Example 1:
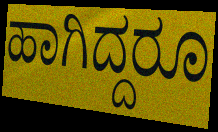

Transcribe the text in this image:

ಹಾಗಿದ್ದರೂ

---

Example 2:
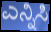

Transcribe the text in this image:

ಎನ್ನಿಸಿ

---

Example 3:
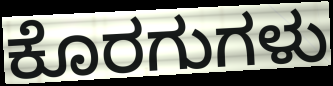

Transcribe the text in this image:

ಕೊರಗುಗಳು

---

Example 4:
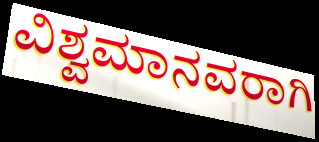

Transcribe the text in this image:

ವಿಶ್ವಮಾನವರಾಗಿ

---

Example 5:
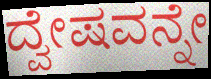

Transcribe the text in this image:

ದ್ವೇಷವನ್ನೇ